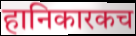
हानिकारकच